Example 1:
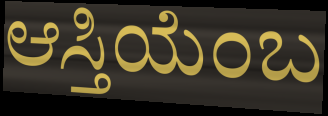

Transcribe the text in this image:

ಆಸ್ತಿಯೆಂಬ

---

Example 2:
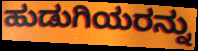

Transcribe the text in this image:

ಹುಡುಗಿಯರನ್ನು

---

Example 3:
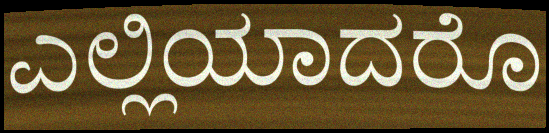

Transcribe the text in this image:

ಎಲ್ಲಿಯಾದರೊ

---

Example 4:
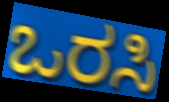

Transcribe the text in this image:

ಒರಸಿ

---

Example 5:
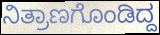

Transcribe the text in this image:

ನಿತ್ರಾಣಗೊಂಡಿದ್ದ